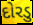
દોરડુ